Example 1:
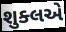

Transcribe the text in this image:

શુક્લએ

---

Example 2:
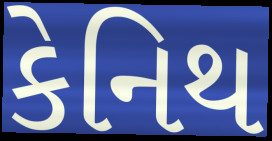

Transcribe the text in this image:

કેનિથ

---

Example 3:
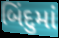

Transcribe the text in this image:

બિંદુમાં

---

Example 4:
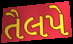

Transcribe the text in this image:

તૈલપે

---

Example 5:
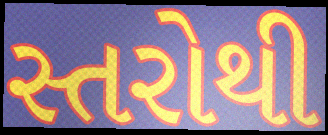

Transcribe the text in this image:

સ્તરોથી